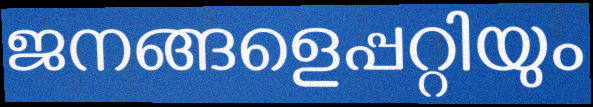
ജനങ്ങളെപ്പറ്റിയും